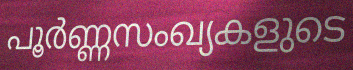
പൂർണ്ണസംഖ്യകളുടെ